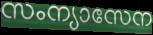
സംന്യാസേന